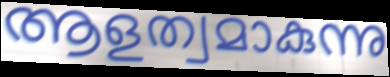
ആളത്വമാകുന്നു